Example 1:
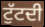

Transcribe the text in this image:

ਟੁੱਟਦੀ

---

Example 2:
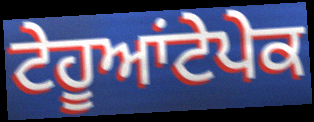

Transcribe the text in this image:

ਟੇਹੂਆਂਟੇਪੇਕ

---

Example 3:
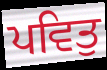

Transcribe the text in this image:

ਪਵਿਤੁ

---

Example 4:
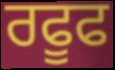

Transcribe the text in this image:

ਰਫੂਫ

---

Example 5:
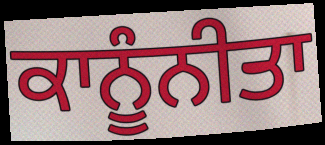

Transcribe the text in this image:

ਕਾਨੂੰਨੀਤਾ